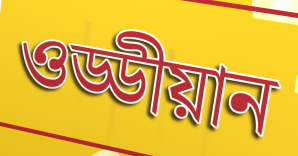
ওড্ডীয়ান